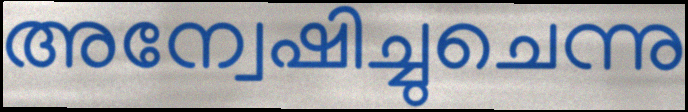
അന്വേഷിച്ചുചെന്നു